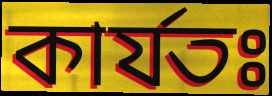
কাৰ্যতঃ